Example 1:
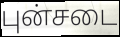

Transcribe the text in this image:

புன்சடை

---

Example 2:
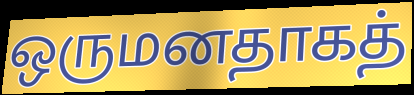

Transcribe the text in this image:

ஒருமனதாகத்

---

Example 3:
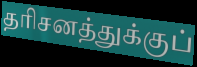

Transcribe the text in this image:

தரிசனத்துக்குப்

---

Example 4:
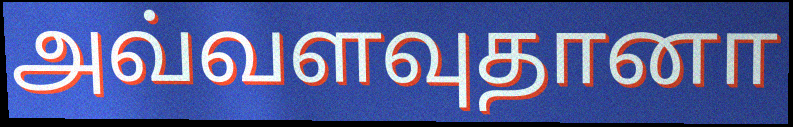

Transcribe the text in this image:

அவ்வளவுதானா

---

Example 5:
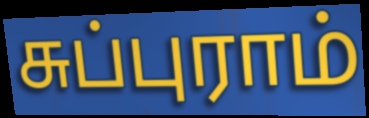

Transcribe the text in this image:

சுப்புராம்